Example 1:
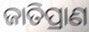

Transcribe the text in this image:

ଜାତିପ୍ରାଣ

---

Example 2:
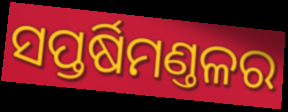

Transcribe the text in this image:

ସପ୍ତର୍ଷିମଣ୍ତଳର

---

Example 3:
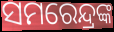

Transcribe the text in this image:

ସମରେନ୍ଦ୍ରଙ୍କ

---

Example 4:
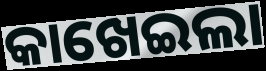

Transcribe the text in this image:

କାଖେଇଲା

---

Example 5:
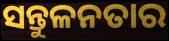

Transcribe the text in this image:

ସନ୍ତୁଳନତାର